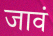
जावं